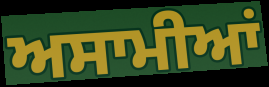
ਅਸਾਮੀਆਂ